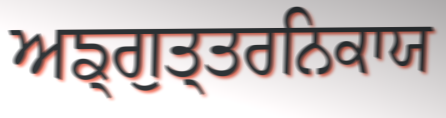
ਅਙ੍ਗੁਤ੍ਤਰਨਿਕਾਯ